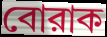
বোরাক